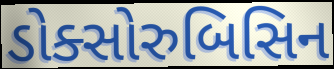
ડોક્સોરુબિસિન